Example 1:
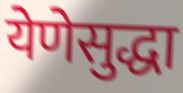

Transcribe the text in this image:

येणेसुद्धा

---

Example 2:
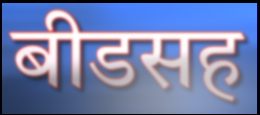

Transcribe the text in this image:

बीडसह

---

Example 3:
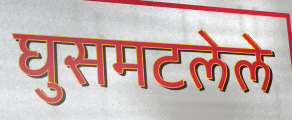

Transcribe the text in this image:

घुसमटलेले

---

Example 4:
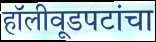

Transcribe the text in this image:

हॉलीवूडपटांचा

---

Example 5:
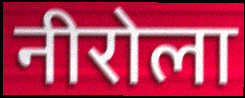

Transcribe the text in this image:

नीरोला